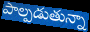
పాల్పడుతున్నా